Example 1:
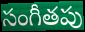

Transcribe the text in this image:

సంగీతపు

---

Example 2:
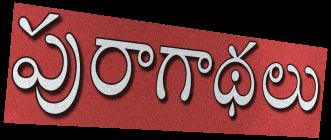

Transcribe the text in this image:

పురాగాథలు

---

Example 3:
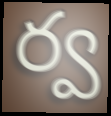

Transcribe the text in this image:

ర్వ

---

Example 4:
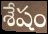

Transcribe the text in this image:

శేషం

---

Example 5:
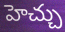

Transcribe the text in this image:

హెచ్చు